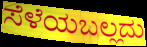
ಸೆಳೆಯಬಲ್ಲದು